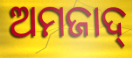
ଅମଜାଦ୍